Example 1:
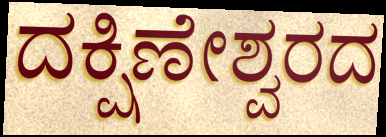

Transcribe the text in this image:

ದಕ್ಷಿಣೇಶ್ವರದ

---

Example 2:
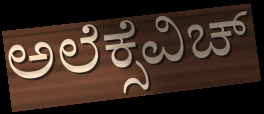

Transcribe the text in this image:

ಅಲೆಕ್ಸೆವಿಚ್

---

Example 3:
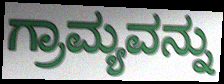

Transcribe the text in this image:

ಗ್ರಾಮ್ಯವನ್ನು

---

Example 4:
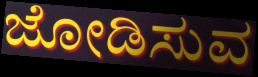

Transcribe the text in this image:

ಜೋಡಿಸುವ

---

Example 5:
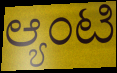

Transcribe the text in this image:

ಆ್ಯಂಟಿ